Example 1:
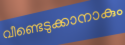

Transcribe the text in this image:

വീണ്ടെടുക്കാനാകും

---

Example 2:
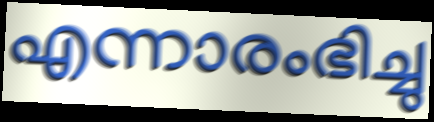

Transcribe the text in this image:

എന്നാരംഭിച്ചു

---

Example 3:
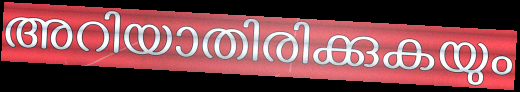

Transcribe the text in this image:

അറിയാതിരിക്കുകയും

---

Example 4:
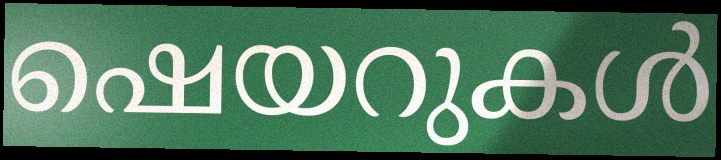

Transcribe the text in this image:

ഷെയറുകൾ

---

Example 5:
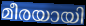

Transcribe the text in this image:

മീരയായി